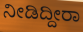
ನೀಡಿದ್ದೀರಾ